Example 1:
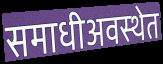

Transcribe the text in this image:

समाधीअवस्थेत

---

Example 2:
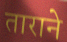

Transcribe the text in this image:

ताराने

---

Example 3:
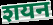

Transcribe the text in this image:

शयन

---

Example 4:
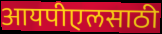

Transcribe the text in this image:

आयपीएलसाठी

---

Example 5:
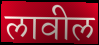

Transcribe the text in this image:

लावील